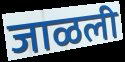
जाळली